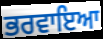
ਭਰਵਾਇਆ